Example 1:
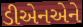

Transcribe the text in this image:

ડીએનએને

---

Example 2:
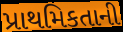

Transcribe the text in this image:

પ્રાથમિકતાની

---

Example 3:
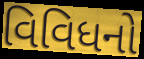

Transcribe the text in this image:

વિવિધનો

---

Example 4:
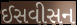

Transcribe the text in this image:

ઈસવીસન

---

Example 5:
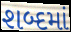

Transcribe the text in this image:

શબ્દમાં